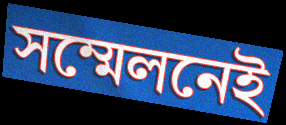
সম্মেলনেই